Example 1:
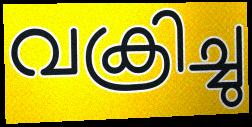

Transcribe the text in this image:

വക്രിച്ചു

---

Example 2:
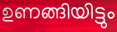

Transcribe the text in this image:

ഉണങ്ങിയിട്ടും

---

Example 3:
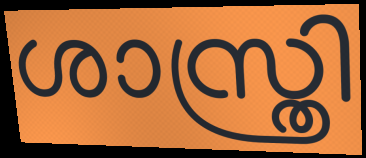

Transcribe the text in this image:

ശാസ്ത്രി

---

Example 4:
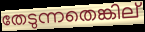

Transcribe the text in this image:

തേടുന്നതെങ്കില്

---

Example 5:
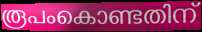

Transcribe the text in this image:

രൂപംകൊണ്ടതിന്